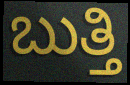
ಬುತ್ತಿ